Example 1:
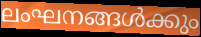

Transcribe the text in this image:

ലംഘനങ്ങൾക്കും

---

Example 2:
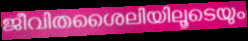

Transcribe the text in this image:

ജീവിതശൈലിയിലൂടെയും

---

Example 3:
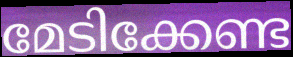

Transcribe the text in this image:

മേടിക്കേണ്ട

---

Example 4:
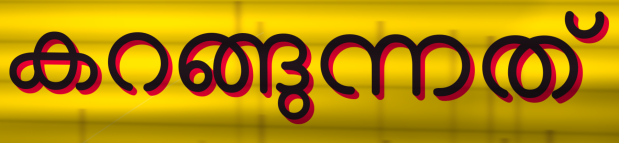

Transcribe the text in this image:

കറങ്ങുന്നത്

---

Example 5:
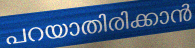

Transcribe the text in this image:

പറയാതിരിക്കാൻ